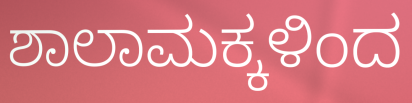
ಶಾಲಾಮಕ್ಕಳಿಂದ